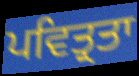
ਪਵਿਤ੍ਰਤਾ